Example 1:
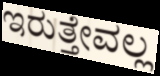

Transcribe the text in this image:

ಇರುತ್ತೇವಲ್ಲ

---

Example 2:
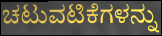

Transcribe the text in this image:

ಚಟುವಟಿಕೆಗಳನ್ನು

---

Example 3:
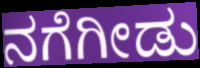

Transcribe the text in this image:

ನಗೆಗೀಡು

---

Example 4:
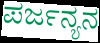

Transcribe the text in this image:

ಪರ್ಜನ್ಯನ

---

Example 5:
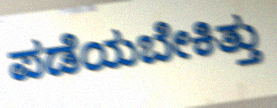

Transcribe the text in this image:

ಪಡೆಯಬೇಕಿತ್ತು